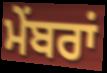
ਮੇਂਬਰਾਂ